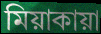
মিয়াকায়া